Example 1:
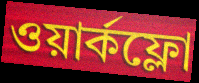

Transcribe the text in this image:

ওয়ার্কফ্লো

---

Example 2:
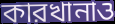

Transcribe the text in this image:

কারখানাও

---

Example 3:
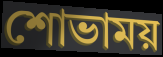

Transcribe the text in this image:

শোভাময়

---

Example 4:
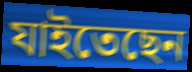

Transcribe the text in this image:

যাইতেছেন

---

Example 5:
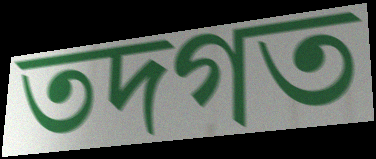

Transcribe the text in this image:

তদগত